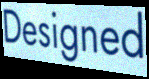
Designed